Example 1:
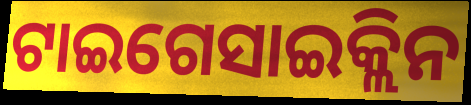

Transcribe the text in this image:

ଟାଇଗେସାଇକ୍ଲିନ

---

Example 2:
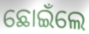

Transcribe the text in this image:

ଛୋଇଁଲେ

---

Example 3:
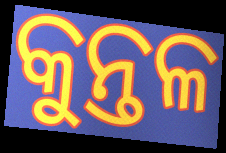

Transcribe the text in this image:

କୁନ୍ତଳ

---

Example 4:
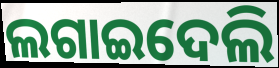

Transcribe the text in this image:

ଲଗାଇଦେଲି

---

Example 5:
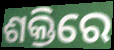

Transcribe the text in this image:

ଶକ୍ତିରେ